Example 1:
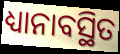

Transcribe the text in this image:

ଧ୍ୟାନାବସ୍ଥିତ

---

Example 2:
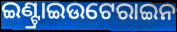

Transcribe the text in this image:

ଇଣ୍ଟ୍ରାଇଉଟେରାଇନ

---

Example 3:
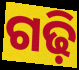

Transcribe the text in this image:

ଗଢ଼ି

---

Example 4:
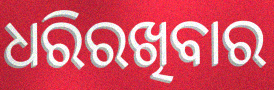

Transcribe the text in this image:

ଧରିରଖିବାର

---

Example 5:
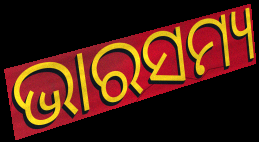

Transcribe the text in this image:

ଭାରସମ୍ୟ